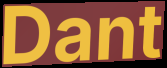
Dant